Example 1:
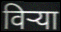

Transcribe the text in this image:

विऱ्या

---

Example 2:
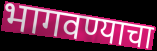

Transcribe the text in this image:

भागवण्याचा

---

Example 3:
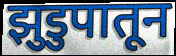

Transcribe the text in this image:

झुडुपातून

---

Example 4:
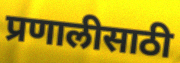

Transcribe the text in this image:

प्रणालीसाठी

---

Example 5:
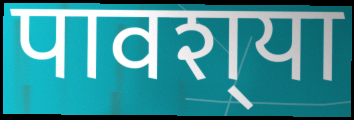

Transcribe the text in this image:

पावश्या